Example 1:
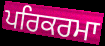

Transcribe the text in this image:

ਪਰਿਕਰਮਾ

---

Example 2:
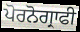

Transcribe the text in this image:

ਪੋਰਨੋਗ੍ਰਾਫੀ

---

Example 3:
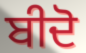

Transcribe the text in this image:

ਬੀਦੋ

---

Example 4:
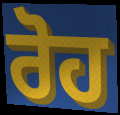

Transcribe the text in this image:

ਰੋਹ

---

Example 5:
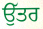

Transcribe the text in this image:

ਉੱਤਰ